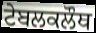
ਟੇਬਲਕਲੌਥ